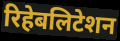
रिहेबलिटेशन